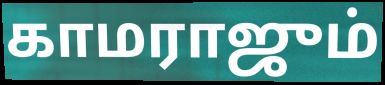
காமராஜும்